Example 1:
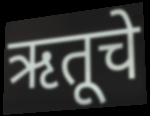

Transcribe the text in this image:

ऋतूचे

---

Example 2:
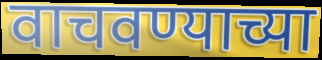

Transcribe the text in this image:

वाचवण्याच्या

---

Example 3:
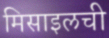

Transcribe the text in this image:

मिसाइलची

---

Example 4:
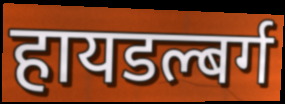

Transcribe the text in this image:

हायडल्बर्ग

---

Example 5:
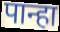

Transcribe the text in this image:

पान्हा